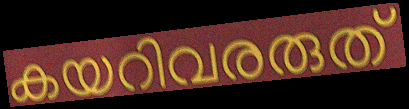
കയറിവരരുത്